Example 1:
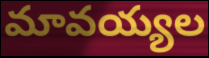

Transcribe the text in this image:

మావయ్యల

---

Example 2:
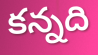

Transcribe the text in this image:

కన్నది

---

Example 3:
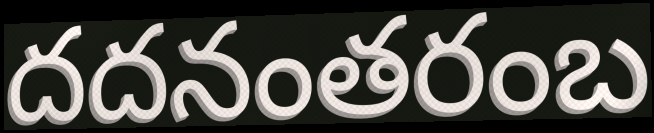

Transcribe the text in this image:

దదనంతరంబ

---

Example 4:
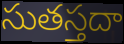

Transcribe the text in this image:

సుతస్తదా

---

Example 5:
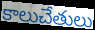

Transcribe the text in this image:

కాలుచేతులు